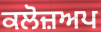
ਕਲੋਜ਼ਅਪ